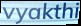
vyakthi